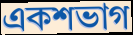
একশভাগ